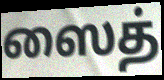
ஸைத்